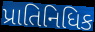
પ્રાતિનિધિક